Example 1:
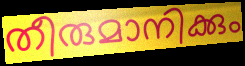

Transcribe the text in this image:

തീരുമാനിക്കും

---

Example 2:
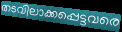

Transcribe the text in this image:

തടവിലാക്കപ്പെട്ടവരെ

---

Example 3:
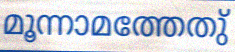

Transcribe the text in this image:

മൂന്നാമത്തേതു്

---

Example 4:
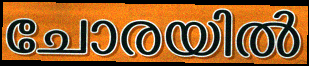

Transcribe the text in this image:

ചോരയിൽ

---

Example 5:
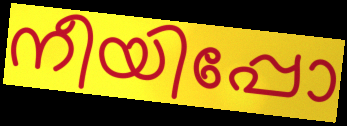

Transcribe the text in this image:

നീയിപ്പോ